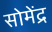
सोमेंद्र